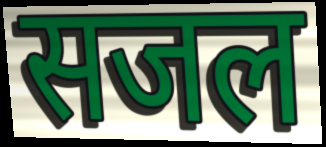
सजल